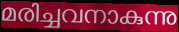
മരിച്ചവനാകുന്നു